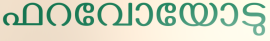
ഫറവോയോടു